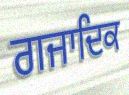
ਗਜਾਦਿਕ